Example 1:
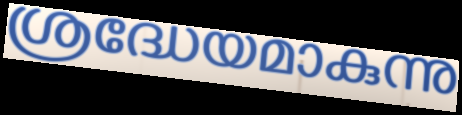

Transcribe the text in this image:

ശ്രദ്ധേയമാകുന്നു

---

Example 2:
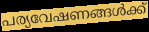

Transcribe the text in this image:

പര്യവേഷണങ്ങൾക്ക്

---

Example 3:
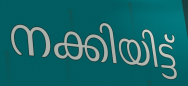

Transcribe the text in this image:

നക്കിയിട്ട്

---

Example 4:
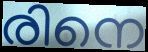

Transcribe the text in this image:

രിനെ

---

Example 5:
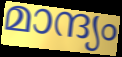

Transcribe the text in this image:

മാന്ദ്യം